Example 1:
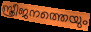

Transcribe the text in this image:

സ്ത്രീജനത്തെയും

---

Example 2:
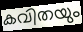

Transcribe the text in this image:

കവിതയും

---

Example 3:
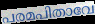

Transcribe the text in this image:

പരമപിതാവേ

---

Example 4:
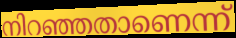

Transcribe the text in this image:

നിറഞ്ഞതാണെന്ന്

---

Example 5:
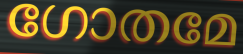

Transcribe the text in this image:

ഗോതമേ